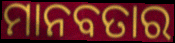
ମାନବତାର